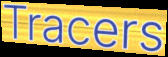
Tracers